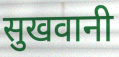
सुखवानी